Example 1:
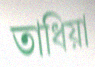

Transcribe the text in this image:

তাধিয়া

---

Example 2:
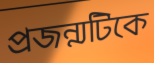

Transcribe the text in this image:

প্রজন্মটিকে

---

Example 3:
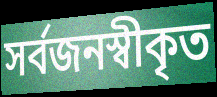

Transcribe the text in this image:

সর্বজনস্বীকৃত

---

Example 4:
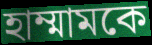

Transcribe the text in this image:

হাম্মামকে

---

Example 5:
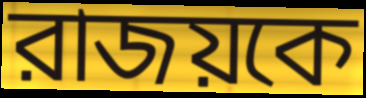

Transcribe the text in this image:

রাজয়কে